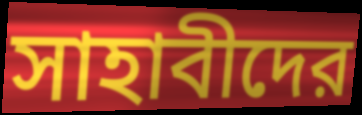
সাহাবীদের